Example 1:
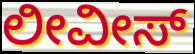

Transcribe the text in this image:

ಲೀವೀಸ್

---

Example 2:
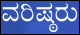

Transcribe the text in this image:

ವರಿಷ್ಠರು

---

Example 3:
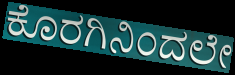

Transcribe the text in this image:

ಕೊರಗಿನಿಂದಲೇ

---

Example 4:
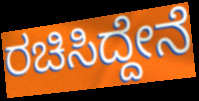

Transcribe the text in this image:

ರಚಿಸಿದ್ದೇನೆ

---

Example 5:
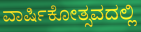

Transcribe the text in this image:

ವಾರ್ಷಿಕೋತ್ಸವದಲ್ಲಿ